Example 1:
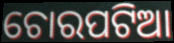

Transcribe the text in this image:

ଚୋରପଟିଆ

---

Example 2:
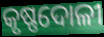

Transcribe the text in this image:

କୃଷ୍ଣଦୋଳୀ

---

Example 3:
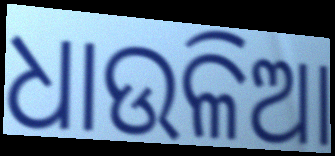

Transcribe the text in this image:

ଧାଉଳିଆ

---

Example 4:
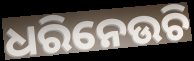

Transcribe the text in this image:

ଧରିନେଉଚି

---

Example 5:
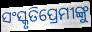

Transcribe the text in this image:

ସଂସ୍କୃତିପ୍ରେମୀଙ୍କୁ